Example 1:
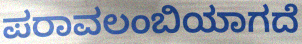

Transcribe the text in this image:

ಪರಾವಲಂಬಿಯಾಗದೆ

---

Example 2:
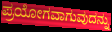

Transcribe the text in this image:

ಪ್ರಯೋಗವಾಗುವುದನ್ನು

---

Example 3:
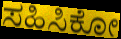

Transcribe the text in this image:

ಸಹಿಸಿಕೋ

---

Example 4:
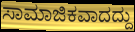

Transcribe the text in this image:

ಸಾಮಾಜಿಕವಾದದ್ದು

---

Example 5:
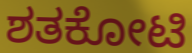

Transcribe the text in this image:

ಶತಕೋಟಿ